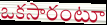
ఒకసారంటూ